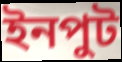
ইনপুট